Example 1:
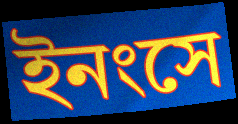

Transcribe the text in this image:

ইনংসে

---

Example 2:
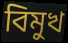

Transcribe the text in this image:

বিমুখ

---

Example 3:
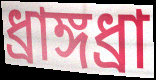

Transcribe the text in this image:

ধ্রাঙ্গধ্রা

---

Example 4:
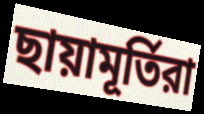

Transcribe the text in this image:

ছায়ামূর্তিরা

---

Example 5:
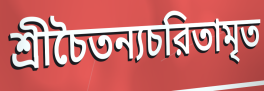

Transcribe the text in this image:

শ্রীচৈতন্যচরিতামৃত